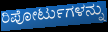
ರಿಪೋರ್ಟುಗಳನ್ನು